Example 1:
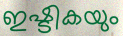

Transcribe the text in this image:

ഇഷ്ടികയും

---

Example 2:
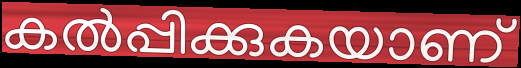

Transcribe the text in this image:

കൽപ്പിക്കുകയാണ്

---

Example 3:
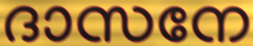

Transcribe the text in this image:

ദാസനേ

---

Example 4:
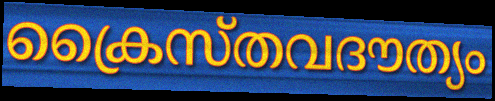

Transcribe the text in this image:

ക്രൈസ്തവദൗത്യം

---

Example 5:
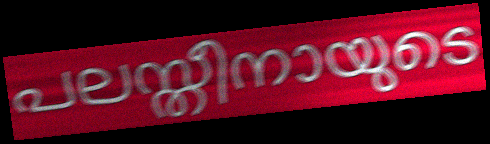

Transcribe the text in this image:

പലസ്തീനായുടെ